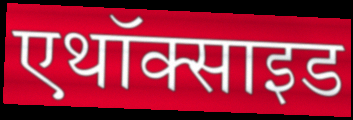
एथॉक्साइड